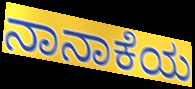
ನಾನಾಕೆಯ